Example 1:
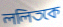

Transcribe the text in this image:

ললিতকে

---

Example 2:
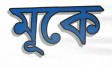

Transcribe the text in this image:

মূকে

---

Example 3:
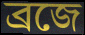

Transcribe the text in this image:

ব্রজে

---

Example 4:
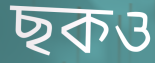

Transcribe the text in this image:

ছকও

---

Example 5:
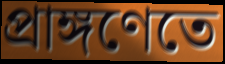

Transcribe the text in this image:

প্রাঙ্গণেতে